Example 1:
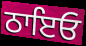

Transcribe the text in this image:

ਠਾਇਓ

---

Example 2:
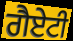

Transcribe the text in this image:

ਗੈਏਟੀ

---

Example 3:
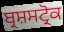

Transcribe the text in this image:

ਬ੍ਰਸ਼ਸਟ੍ਰੋਕ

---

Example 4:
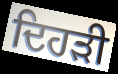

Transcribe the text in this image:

ਦਿਹੜੀ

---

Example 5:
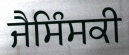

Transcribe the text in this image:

ਜੈਸਿੰਸਕੀ